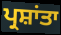
ਪ੍ਰਸ਼ਾਂਤਾ